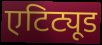
एटिट्यूड